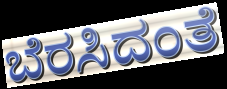
ಬೆರಸಿದಂತೆ